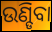
ଉଣ୍ଡିବା